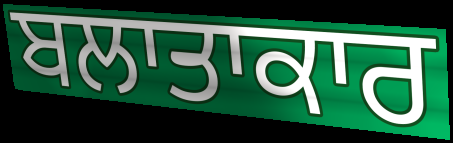
ਬਲਾਤਾਕਾਰ